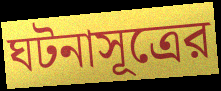
ঘটনাসূত্রের